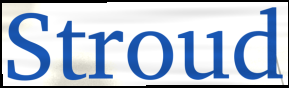
Stroud